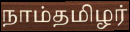
நாம்தமிழர்